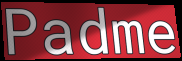
Padme